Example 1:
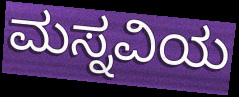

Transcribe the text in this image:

ಮಸ್ನವಿಯ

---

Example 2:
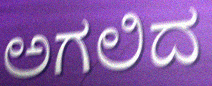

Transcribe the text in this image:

ಅಗಲಿದ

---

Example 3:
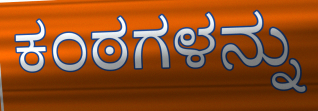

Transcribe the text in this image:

ಕಂಠಗಳನ್ನು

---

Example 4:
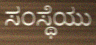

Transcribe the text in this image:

ಸಂಸ್ಥೆಯು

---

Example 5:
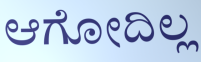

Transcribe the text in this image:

ಆಗೋದಿಲ್ಲ